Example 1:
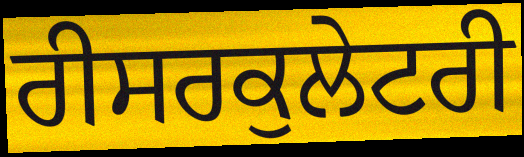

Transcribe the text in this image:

ਰੀਸਰਕੁਲੇਟਰੀ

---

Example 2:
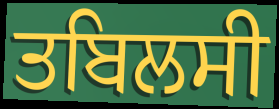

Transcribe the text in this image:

ਤਬਿਲਸੀ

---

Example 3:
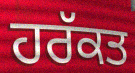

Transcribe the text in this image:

ਹਰੱਕਤ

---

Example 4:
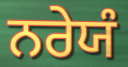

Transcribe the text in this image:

ਨਰੇਯੰ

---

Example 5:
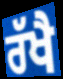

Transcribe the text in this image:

ਰੱਖੈ